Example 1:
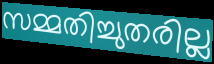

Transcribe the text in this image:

സമ്മതിച്ചുതരില്ല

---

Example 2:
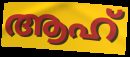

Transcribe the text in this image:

ആഹ്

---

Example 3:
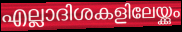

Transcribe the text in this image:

എല്ലാദിശകളിലേയ്ക്കും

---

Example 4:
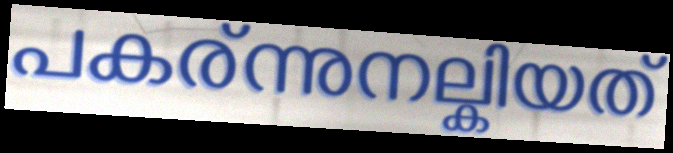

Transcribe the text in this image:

പകര്ന്നുനല്കിയത്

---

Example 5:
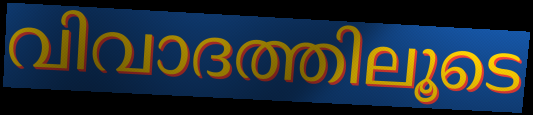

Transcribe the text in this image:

വിവാദത്തിലൂടെ